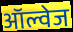
ऑल्वेज